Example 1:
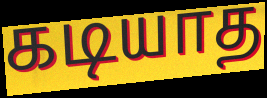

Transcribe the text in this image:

கடியாத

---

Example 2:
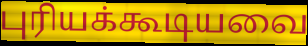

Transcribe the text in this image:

புரியக்கூடியவை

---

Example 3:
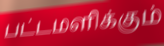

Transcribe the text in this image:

பட்டமளிக்கும்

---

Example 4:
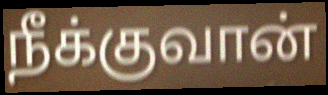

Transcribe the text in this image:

நீக்குவான்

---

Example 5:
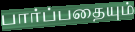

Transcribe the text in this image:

பார்ப்பதையும்